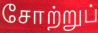
சோற்றுப்